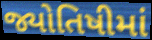
જ્યોતિષીમાં